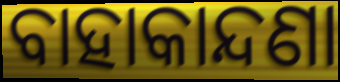
ବାହାକାନ୍ଦଣା